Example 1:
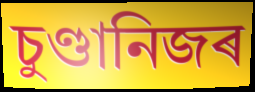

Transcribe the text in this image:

চুণ্ডানিজৰ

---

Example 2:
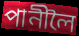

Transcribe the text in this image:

পানীলৈ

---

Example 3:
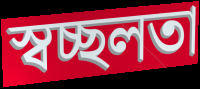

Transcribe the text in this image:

স্বচ্ছলতা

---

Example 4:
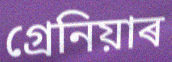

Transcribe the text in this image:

গ্ৰেনিয়াৰ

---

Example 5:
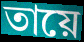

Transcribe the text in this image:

তায়ে